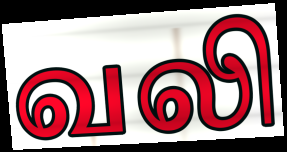
வலி